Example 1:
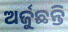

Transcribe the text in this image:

ଅର୍ଜୁଛନ୍ତି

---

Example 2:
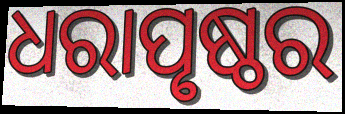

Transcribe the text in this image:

ଧରାପୃଷ୍ଠର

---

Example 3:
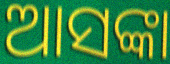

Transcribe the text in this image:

ଆସଙ୍କା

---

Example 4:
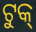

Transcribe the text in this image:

ଟୁକ୍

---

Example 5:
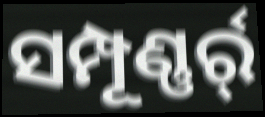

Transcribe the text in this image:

ସମ୍ପୂଣ୍ଣର୍ର୍